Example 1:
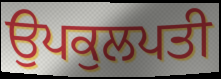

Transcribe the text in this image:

ਉਪਕੁਲਪਤੀ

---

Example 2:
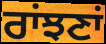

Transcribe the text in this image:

ਰਾਂਝਣਾਂ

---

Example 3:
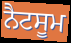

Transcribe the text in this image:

ਨੈਟਸੂਮ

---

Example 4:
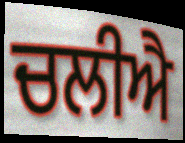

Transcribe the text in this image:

ਚਲੀਐ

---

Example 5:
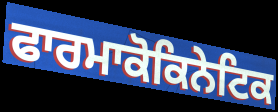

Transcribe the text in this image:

ਫਾਰਮਾਕੋਕਿਨੇਟਿਕ